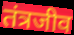
तंत्रजीव